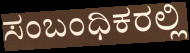
ಸಂಬಂಧಿಕರಲ್ಲಿ